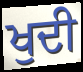
ਖੁਦੀ